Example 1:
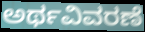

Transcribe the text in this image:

ಅರ್ಥವಿವರಣೆ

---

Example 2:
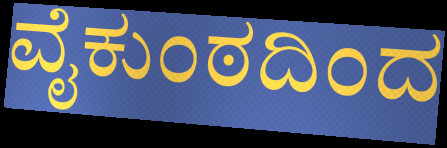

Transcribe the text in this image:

ವೈಕುಂಠದಿಂದ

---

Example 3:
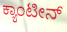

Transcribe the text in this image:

ಕ್ಯಾಂಟೀನ್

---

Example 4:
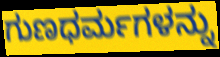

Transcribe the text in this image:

ಗುಣಧರ್ಮಗಳನ್ನು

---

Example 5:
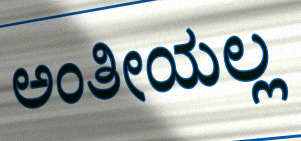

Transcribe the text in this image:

ಅಂತೀಯಲ್ಲ